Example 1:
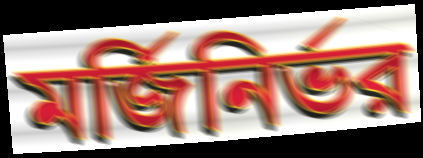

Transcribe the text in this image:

মর্জিনির্ভর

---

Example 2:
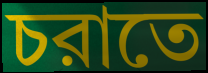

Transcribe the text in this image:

চরাতে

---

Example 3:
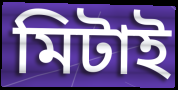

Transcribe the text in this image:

মিটাই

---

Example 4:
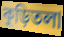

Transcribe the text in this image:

কুড়িতলা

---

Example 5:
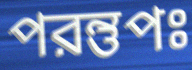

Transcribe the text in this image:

পরন্তুপঃ